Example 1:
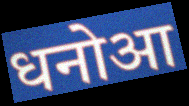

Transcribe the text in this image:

धनोआ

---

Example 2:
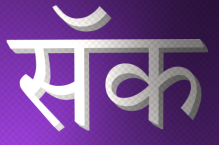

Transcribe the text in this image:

सॅक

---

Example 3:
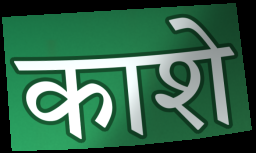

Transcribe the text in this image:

काशे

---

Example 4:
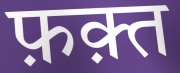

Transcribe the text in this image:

फ़क़्त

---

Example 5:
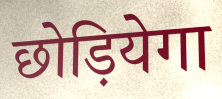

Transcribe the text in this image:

छोड़ियेगा